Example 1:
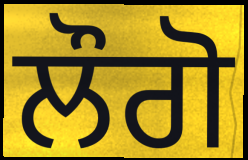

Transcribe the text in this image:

ਲੌਗੋ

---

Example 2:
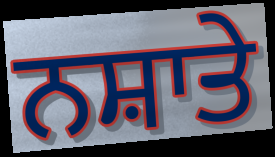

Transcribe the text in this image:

ਨਸ਼ਾਤੇ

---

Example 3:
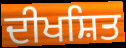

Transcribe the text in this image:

ਦੀਖਸ਼ਿਤ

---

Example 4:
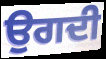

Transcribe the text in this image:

ਉਗਦੀ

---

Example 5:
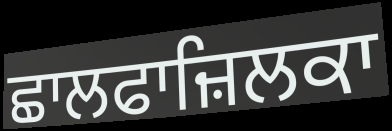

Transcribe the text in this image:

ਛਾਲਫਾਜ਼ਿਲਕਾ